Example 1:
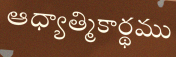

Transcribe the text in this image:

ఆధ్యాత్మికార్థము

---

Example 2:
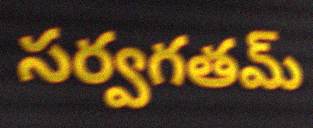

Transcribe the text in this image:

సర్వగతమ్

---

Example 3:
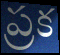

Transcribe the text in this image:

ప్రక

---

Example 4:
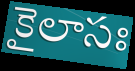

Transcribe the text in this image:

కైలాసః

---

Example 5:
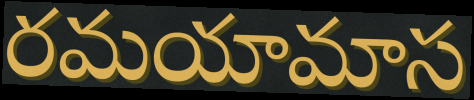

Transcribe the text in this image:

రమయామాస